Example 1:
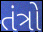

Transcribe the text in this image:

તંત્રો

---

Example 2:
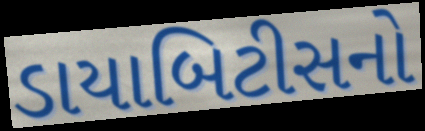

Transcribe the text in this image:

ડાયાબિટીસનો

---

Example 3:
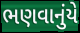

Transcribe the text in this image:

ભણવાનુંયે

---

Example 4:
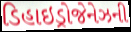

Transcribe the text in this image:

ડિહાઇડ્રોજેનેઝની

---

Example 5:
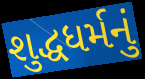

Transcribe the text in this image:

શુદ્ધધર્મનું